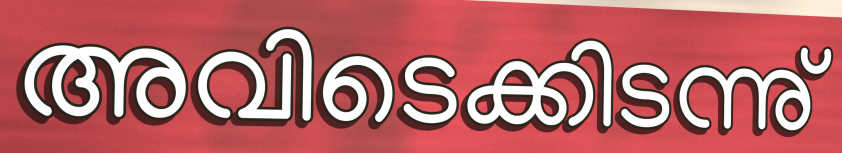
അവിടെക്കിടന്നു്